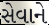
સેવાને